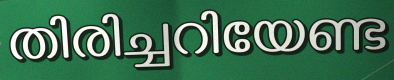
തിരിച്ചറിയേണ്ട